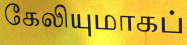
கேலியுமாகப்